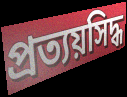
প্রত্যয়সিদ্ধ